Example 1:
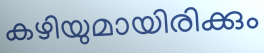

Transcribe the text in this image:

കഴിയുമായിരിക്കും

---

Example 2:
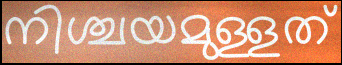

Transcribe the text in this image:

നിശ്ചയമുള്ളത്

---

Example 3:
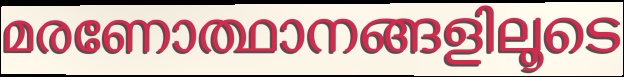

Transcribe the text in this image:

മരണോത്ഥാനങ്ങളിലൂടെ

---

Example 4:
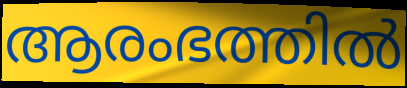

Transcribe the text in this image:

ആരംഭത്തിൽ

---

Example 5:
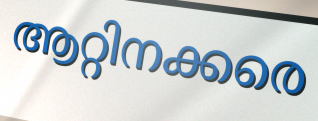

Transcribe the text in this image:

ആറ്റിനക്കരെ